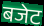
बजेट